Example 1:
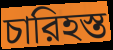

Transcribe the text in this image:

চারিহস্ত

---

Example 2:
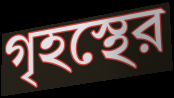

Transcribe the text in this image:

গৃহস্থের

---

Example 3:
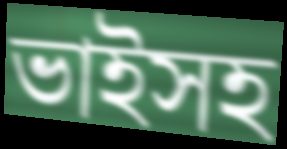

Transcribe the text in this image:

ভাইসহ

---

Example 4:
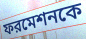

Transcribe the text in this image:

ফরমেশনকে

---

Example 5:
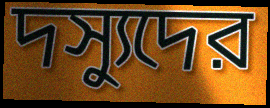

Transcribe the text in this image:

দস্যুদের